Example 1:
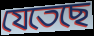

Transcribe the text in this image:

যেতেছে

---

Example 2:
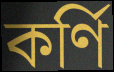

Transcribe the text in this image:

কর্ণি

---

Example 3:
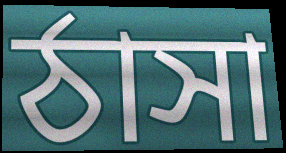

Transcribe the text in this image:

ঠাসা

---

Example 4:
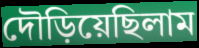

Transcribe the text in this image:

দৌড়িয়েছিলাম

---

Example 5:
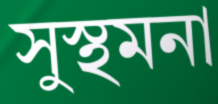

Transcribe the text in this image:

সুস্থমনা